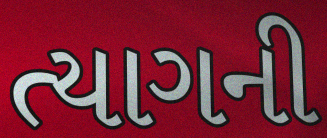
ત્‍યાગની